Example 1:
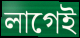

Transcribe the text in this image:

লাগেই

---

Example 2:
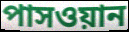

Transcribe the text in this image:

পাসওয়ান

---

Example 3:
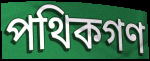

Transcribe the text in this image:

পথিকগণ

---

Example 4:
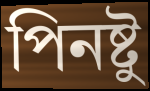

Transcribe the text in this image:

পিনষ্টু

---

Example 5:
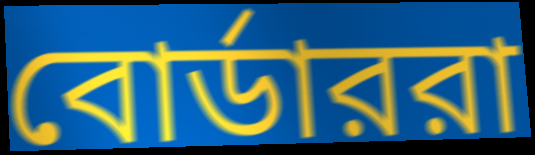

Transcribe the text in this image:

বোর্ডাররা